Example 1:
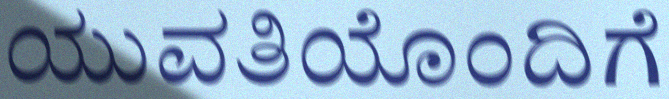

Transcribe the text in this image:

ಯುವತಿಯೊಂದಿಗೆ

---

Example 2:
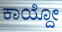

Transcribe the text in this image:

ಕಾಯ್ದೋ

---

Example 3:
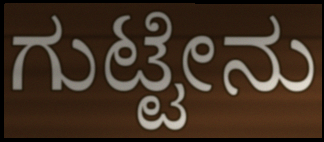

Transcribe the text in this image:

ಗುಟ್ಟೇನು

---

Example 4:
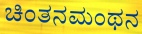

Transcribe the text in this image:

ಚಿಂತನಮಂಥನ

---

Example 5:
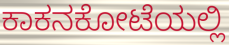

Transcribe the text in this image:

ಕಾಕನಕೋಟೆಯಲ್ಲಿ